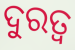
ଦୁରତ୍ଵ